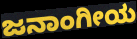
ಜನಾಂಗೀಯ